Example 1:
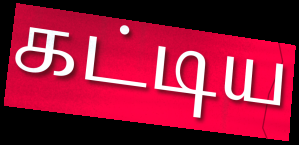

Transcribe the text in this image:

கட்டிய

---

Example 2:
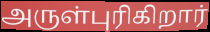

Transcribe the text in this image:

அருள்புரிகிறார்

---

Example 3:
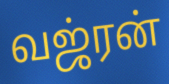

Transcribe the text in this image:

வஜ்ரன்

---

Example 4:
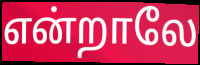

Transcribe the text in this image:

என்றாலே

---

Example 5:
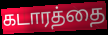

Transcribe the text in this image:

கடாரத்தை